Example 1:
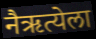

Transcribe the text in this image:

नैऋत्येला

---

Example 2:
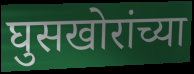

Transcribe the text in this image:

घुसखोरांच्या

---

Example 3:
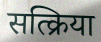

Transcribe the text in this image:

सत्क्रिया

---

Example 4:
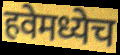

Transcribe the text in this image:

हवेमध्येच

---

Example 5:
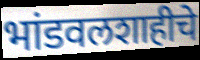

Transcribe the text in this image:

भांडवलशाहीचे